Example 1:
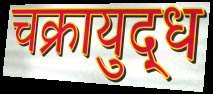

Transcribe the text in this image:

चक्रायुद्ध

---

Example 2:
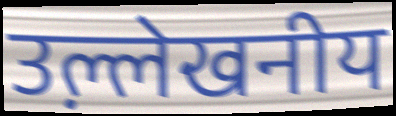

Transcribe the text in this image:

उल्ल़ेखनीय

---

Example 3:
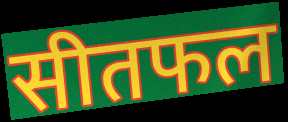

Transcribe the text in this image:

सीतफल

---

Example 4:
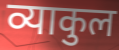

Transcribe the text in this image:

व्याकुल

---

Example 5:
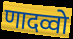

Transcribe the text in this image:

णादव्वो